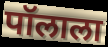
पॉलाला